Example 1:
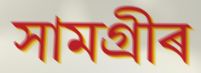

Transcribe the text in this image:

সামগ্ৰীৰ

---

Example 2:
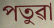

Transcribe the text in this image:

পতুৱা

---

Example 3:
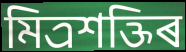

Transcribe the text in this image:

মিত্ৰশক্তিৰ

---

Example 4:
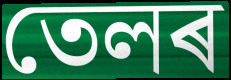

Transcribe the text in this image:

তেলৰ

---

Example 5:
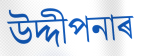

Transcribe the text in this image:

উদ্দীপনাৰ